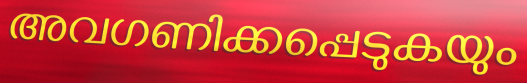
അവഗണിക്കപ്പെടുകയും